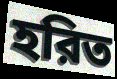
হরিত